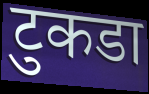
टुकडा